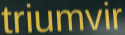
triumvir